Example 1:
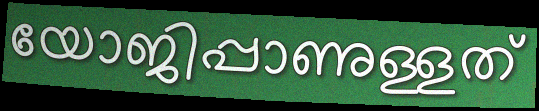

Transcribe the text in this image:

യോജിപ്പാണുള്ളത്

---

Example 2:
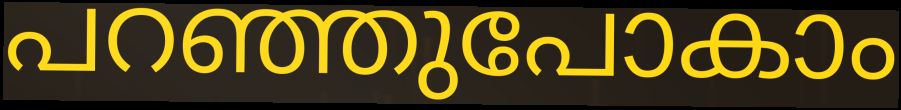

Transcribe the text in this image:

പറഞ്ഞുപോകാം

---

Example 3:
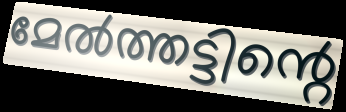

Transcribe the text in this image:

മേൽത്തട്ടിന്റെ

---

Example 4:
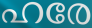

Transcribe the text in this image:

ഹരേ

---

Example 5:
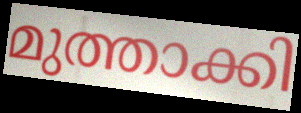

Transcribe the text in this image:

മുത്താക്കി